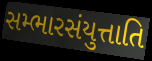
સમ્ભારસંયુત્તાતિ